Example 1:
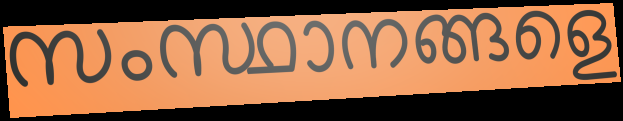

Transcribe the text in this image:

സംസ്ഥാനങ്ങളെ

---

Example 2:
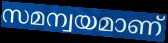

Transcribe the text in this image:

സമന്വയമാണ്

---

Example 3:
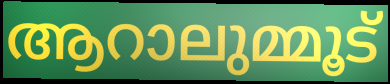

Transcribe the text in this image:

ആറാലുമ്മൂട്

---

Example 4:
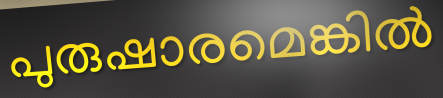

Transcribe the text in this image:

പുരുഷാരമെങ്കിൽ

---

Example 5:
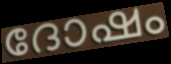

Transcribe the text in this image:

ദോഷം